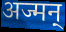
अज्मन्